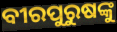
ବୀରପୁରୁଷଙ୍କୁ